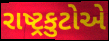
રાષ્ટ્રકુટોએ